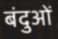
बंदुओं